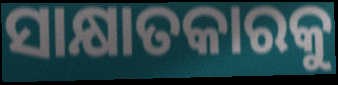
ସାକ୍ଷାତକାରକୁ